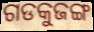
ଗଡକୁଜଙ୍ଗ